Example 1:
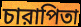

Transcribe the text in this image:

চারাপিতা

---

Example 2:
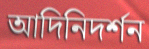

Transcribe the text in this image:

আদিনিদর্শন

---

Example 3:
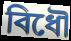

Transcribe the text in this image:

বিধৌ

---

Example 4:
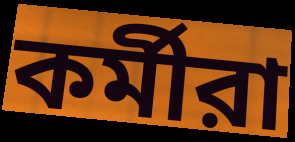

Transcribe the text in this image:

কর্মীরা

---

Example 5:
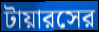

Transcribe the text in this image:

টায়ারসের